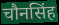
चौनसिंह